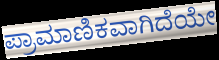
ಪ್ರಾಮಾಣಿಕವಾಗಿದೆಯೇ